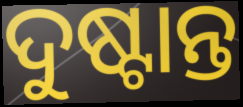
ଦୁଷ୍ଟାନ୍ତ